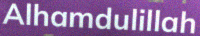
Alhamdulillah